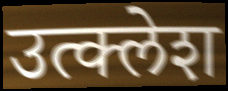
उत्क्लेश